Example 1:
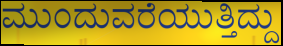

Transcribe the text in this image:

ಮುಂದುವರೆಯುತ್ತಿದ್ದು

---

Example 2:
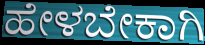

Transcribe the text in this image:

ಹೇಳಬೇಕಾಗಿ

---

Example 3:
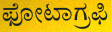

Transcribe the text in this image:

ಫೋಟಾಗ್ರಫಿ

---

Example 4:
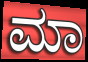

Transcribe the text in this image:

ಮಾ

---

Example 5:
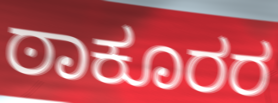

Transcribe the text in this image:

ಠಾಕೂರರ